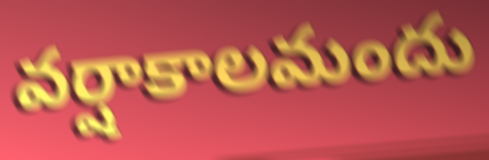
వర్షాకాలమందు